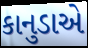
કાનુડાએ